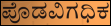
ಪೊಡವಿಗಧಿಕ